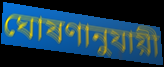
ঘোষণানুযায়ী